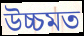
উচ্চমত